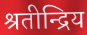
श्रतीन्द्रिय